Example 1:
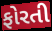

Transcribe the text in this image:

ફોરતી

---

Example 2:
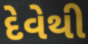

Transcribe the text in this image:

દેવેથી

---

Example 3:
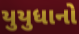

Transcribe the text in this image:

યુયુધાનો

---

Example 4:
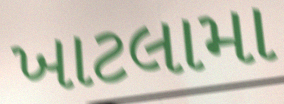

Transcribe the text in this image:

ખાટલામા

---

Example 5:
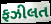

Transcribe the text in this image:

ફઝીલત